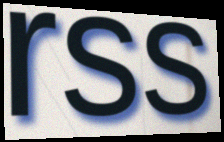
rss